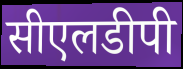
सीएलडीपी